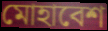
মোহাবেশ